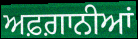
ਅਫ਼ਗ਼ਾਨੀਆਂ